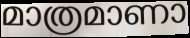
മാത്രമാണാ